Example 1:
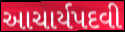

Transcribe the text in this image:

આચાર્યપદવી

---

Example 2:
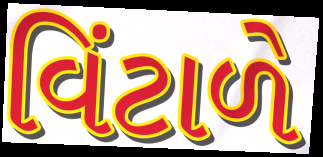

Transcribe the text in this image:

વિંટાળે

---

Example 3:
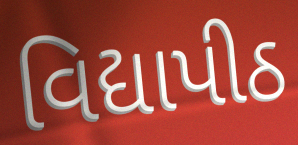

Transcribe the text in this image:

વિદ્યાપીઠ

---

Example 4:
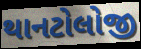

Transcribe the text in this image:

થાનટોલોજી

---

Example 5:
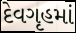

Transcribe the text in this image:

દેવગૃહમાં